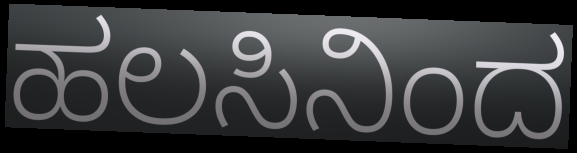
ಹಲಸಿನಿಂದ